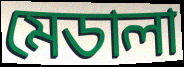
মেডালা